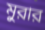
মুরার